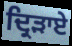
ਦ੍ਰਿੜਾਏ